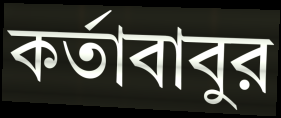
কর্তাবাবুর